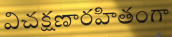
విచక్షణారహితంగా